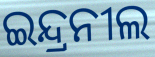
ଇନ୍ଦ୍ରନୀଲ